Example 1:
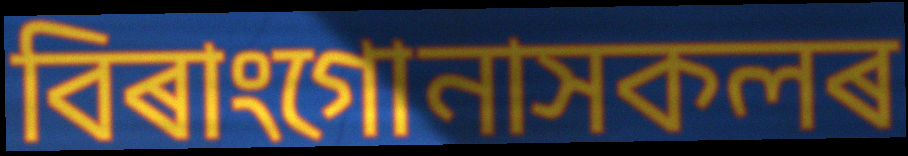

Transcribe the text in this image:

বিৰাংগোনাসকলৰ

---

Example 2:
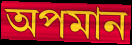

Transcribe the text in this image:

অপমান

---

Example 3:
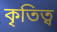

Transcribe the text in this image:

কৃতিত্ব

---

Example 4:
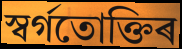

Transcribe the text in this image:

স্বৰ্গতোক্তিৰ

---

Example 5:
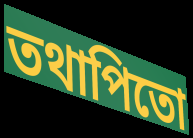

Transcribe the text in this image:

তথাপিতো